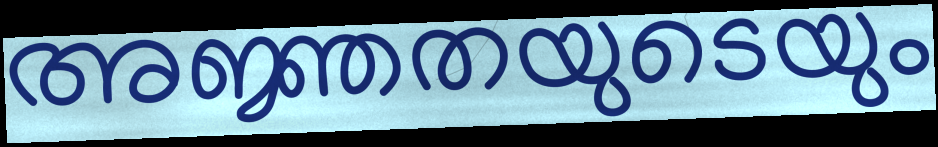
അജ്ഞതയുടെയും